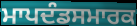
ਮਾਪਦੰਡਸਮਾਰਕ